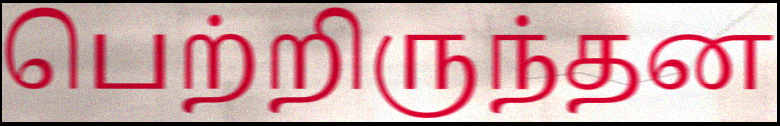
பெற்றிருந்தன